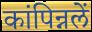
कांपिन्नलें